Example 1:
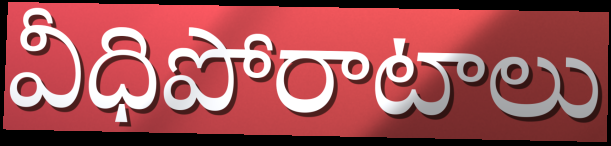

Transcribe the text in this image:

వీధిపోరాటాలు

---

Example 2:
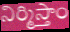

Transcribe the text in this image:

నిర్మిస్తాం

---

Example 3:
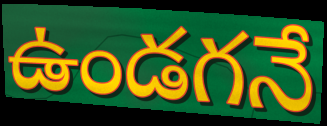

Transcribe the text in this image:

ఉండగనే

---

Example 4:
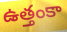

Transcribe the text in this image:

ఉత్తంకా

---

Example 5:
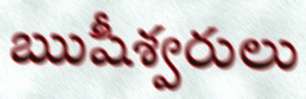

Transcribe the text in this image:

ఋషీశ్వరులు